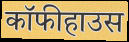
कॉफीहाउस